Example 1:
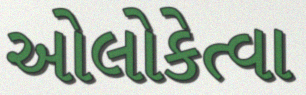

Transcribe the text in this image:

ઓલોકેત્વા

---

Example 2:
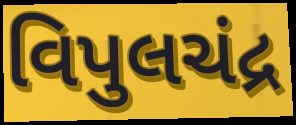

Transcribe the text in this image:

વિપુલચંદ્ર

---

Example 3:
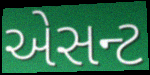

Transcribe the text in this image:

એસન્ટ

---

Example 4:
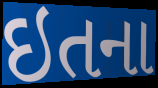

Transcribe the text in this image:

ઇતના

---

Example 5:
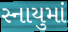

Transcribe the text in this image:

સ્નાયુમાં